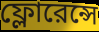
ফ্লোরেন্সে